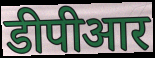
डीपीआर